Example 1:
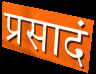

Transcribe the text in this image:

प्रसादं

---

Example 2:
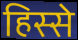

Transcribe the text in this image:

हिस्‍से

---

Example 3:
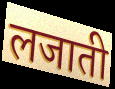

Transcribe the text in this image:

लजाती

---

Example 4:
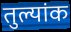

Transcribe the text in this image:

तुल्यांक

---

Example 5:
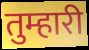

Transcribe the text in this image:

तुम्हारी